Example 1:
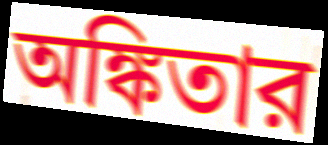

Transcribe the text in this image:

অঙ্কিতার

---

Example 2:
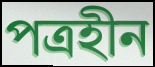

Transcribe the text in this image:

পত্রহীন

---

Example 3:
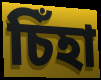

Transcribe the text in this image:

চিঁহা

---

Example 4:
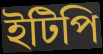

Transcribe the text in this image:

ইটিপি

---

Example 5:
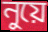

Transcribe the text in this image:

নুয়ে